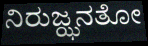
ನಿರುಜ್ಝನತೋ